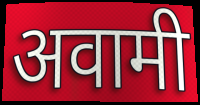
अवामी